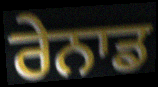
ਰੇਨਾਡ